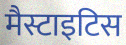
मैस्टाइटिस